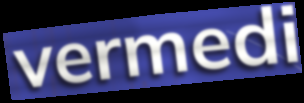
vermedi